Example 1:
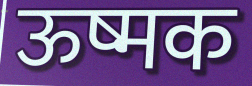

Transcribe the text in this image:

ऊष्मक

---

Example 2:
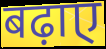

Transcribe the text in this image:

बढ़ाए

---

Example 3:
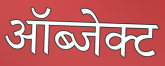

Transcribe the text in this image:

ऑब्जेक्ट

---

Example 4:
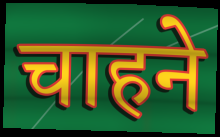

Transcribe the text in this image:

चाहने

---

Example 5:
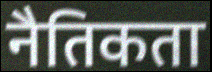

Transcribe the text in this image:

नैतिकता